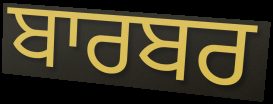
ਬਾਰਬਰ